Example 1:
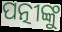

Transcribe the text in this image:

ପତ୍ନୀଙ୍କୁ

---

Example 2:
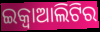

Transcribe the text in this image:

ଇକ୍ୱାଆଲିଟିର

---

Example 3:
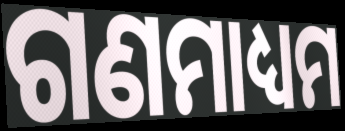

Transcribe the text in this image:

ଗଣମାଧ୍ୟମ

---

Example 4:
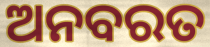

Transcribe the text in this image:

ଅନବରତ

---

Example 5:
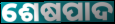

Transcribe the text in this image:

ଶେଷପାଦ